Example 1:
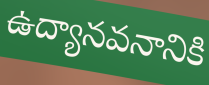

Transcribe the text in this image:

ఉద్యానవనానికి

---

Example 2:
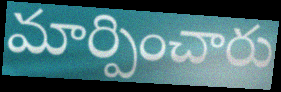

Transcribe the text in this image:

మార్పించారు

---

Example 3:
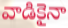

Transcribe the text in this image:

వాడికైనా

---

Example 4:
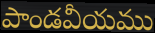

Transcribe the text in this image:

పాండవీయము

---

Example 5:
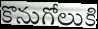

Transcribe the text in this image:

కొనుగోలుకి